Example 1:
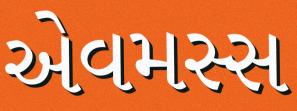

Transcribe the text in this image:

એવમસ્સ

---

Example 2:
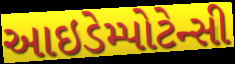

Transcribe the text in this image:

આઇડેમ્પોટેન્સી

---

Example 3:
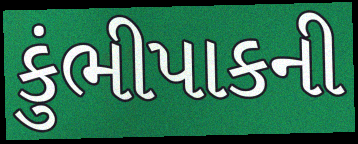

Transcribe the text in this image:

કુંભીપાકની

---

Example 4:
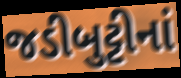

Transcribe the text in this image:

જડીબુટ્ટીનાં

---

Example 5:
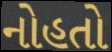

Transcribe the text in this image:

નોહતો